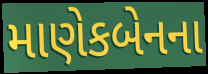
માણેકબેનના